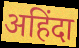
अहिंदा